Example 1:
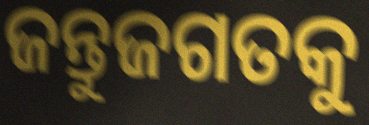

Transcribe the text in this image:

ଜନ୍ତୁଜଗତକୁ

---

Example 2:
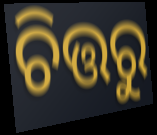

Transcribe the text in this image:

ଚିତ୍ତରୁ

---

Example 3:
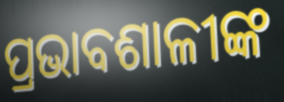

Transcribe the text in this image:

ପ୍ରଭାବଶାଳୀଙ୍କ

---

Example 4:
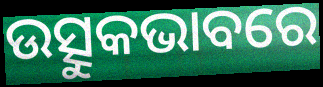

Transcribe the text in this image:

ଉତ୍ସୁକଭାବରେ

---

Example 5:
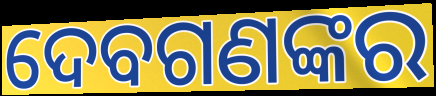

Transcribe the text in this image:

ଦେବଗଣଙ୍କର